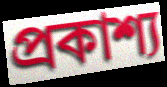
প্রকাশ্য